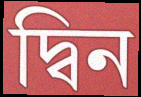
দ্বিন